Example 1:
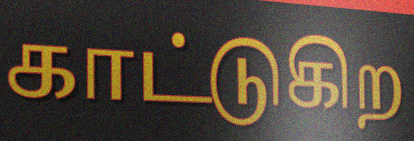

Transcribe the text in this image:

காட்டுகிற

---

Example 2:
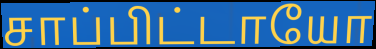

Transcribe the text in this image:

சாப்பிட்டாயோ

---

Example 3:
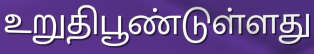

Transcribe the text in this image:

உறுதிபூண்டுள்ளது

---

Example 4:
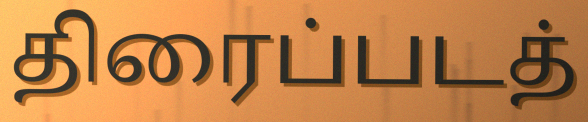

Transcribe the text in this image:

திரைப்படத்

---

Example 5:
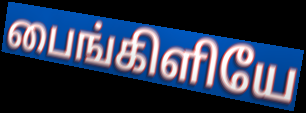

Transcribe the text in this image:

பைங்கிளியே